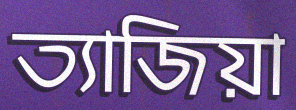
ত্যাজিয়া